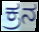
ಕ್ರನ